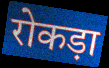
रोकड़ा